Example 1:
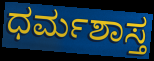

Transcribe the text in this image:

ಧರ್ಮಶಾಸ್ತ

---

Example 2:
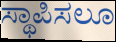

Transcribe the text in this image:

ಸ್ಥಾಪಿಸಲೂ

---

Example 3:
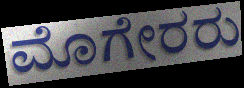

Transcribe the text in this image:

ಮೊಗೇರರು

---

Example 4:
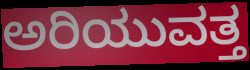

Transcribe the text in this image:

ಅರಿಯುವತ್ತ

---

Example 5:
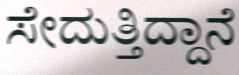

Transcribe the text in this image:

ಸೇದುತ್ತಿದ್ದಾನೆ